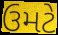
ઉમટે